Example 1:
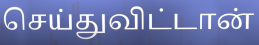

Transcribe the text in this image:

செய்துவிட்டான்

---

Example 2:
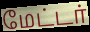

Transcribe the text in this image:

மேட்டர்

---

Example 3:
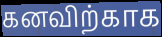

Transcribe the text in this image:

கனவிற்காக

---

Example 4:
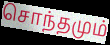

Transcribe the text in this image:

சொந்தமும்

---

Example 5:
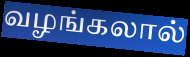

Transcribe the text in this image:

வழங்கலால்